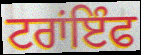
ਟਰਾਂਇੰਫ